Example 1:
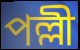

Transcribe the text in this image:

পল্লী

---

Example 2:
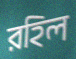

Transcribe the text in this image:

রহিল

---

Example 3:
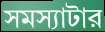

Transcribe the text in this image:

সমস্যাটার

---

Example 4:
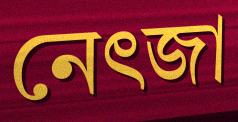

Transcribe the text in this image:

নেৎজা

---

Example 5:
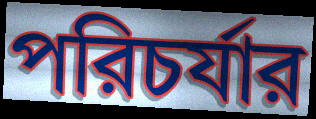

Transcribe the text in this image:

পরিচর্যার